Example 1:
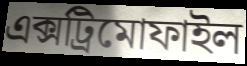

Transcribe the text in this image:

এক্সট্রিমোফাইল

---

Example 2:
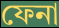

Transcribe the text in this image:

ফেনা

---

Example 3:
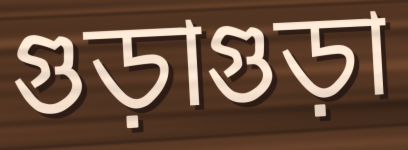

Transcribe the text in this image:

গুড়াগুড়া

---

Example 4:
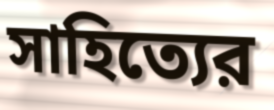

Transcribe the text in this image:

সাহিত্যের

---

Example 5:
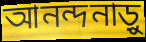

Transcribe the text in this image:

আনন্দনাড়ু